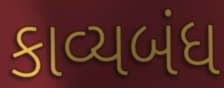
કાવ્યબંધ